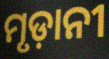
ମୃଡ଼ାନୀ